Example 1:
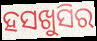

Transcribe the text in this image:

ହସଖୁସିର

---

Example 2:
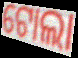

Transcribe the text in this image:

ଟୋଲା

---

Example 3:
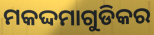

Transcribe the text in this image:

ମକଦ୍ଦମାଗୁଡିକର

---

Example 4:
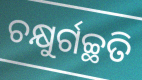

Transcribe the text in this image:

ଚକ୍ଷୁର୍ଗଚ୍ଛତି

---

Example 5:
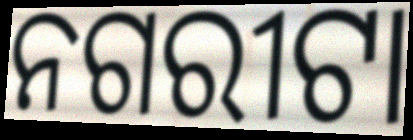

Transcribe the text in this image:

ନଗରୀଟା